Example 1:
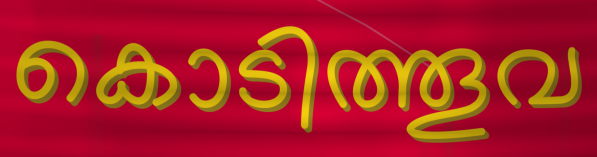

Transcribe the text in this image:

കൊടിത്തൂവ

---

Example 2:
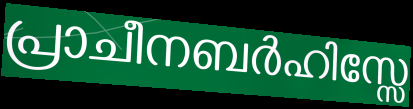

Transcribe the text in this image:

പ്രാചീനബർഹിസ്സേ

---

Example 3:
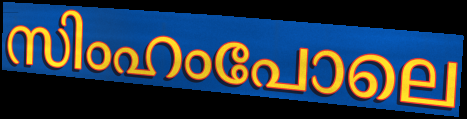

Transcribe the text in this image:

സിംഹംപോലെ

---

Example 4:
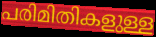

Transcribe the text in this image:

പരിമിതികളുള്ള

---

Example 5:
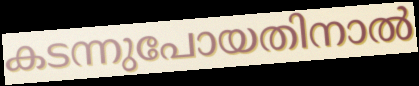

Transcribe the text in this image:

കടന്നുപോയതിനാൽ